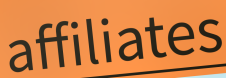
affiliates